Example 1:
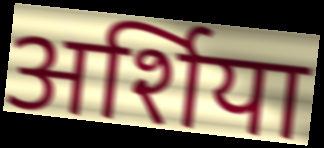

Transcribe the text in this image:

अर्शिया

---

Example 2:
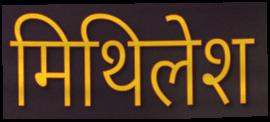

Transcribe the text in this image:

मिथिलेश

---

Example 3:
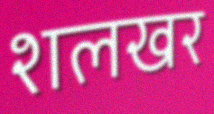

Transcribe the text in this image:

शलखर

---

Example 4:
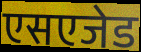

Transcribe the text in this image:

एसएजेड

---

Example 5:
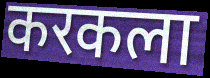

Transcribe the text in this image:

करकला